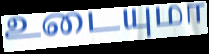
உடையுமா